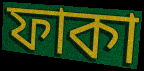
ফাকা